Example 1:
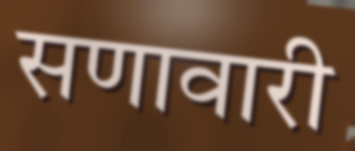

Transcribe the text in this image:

सणावारी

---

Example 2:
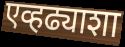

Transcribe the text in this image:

एव्हढ्याशा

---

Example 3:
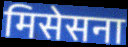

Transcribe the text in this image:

मिसेसना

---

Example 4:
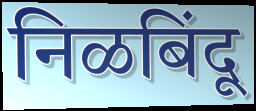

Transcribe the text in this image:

निळबिंदू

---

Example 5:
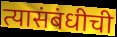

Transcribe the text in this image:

त्यासंबंधीची